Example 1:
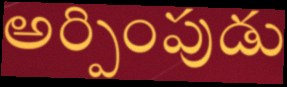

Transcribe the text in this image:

అర్పింపుడు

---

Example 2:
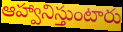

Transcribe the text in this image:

ఆహ్వానిస్తుంటారు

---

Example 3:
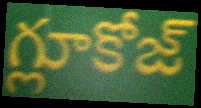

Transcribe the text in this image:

గ్లూకోజ్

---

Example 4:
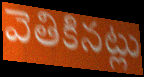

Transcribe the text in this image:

వెతికినట్లు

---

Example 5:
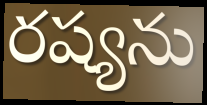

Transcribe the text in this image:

రష్యను